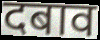
दबाव